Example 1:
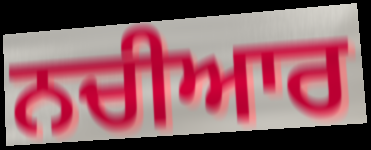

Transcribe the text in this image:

ਨਚੀਆਰ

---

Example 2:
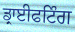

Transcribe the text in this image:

ਡ੍ਰਾਈਫਟਿੰਗ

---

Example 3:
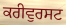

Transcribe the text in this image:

ਕਰੀਵੁਰਸਟ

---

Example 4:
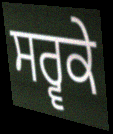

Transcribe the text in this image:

ਸਰ੍ਵਕੇ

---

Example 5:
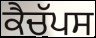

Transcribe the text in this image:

ਕੈਚੱਪਸ